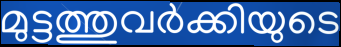
മുട്ടത്തുവർക്കിയുടെ